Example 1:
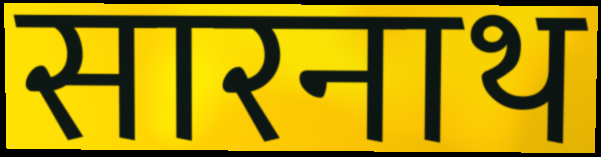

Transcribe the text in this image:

सारनाथ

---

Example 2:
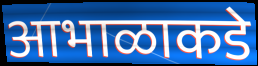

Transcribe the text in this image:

आभाळाकडे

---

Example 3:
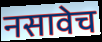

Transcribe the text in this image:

नसावेच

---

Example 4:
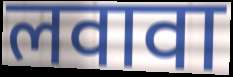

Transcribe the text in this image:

लवावा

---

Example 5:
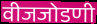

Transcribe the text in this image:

वीजजोडणी